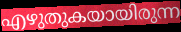
എഴുതുകയായിരുന്ന